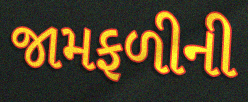
જામફળીની